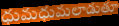
ధుమధుమలాడుతూ